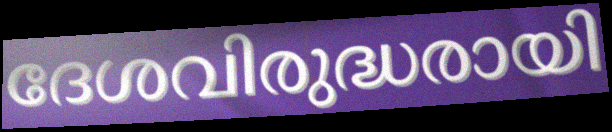
ദേശവിരുദ്ധരായി